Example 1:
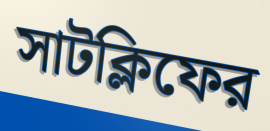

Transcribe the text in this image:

সাটক্লিফের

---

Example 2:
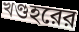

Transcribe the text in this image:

খণ্ডহরের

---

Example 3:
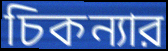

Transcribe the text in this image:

চিকন্যার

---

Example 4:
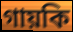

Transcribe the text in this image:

গায়কি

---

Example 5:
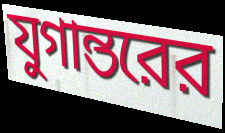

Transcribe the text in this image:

যুগান্তরের